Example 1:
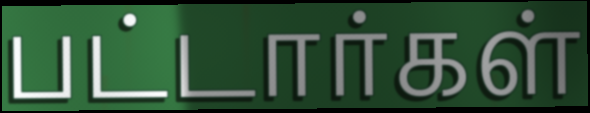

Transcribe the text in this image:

பட்டார்கள்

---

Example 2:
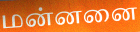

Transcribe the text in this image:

மன்னனை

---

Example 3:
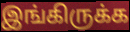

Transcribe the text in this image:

இங்கிருக்க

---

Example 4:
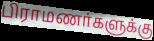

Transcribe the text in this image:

பிராமணர்களுக்கு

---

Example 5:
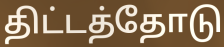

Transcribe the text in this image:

திட்டத்தோடு